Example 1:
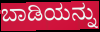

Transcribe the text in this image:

ಬಾಡಿಯನ್ನು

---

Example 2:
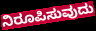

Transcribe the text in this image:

ನಿರೂಪಿಸುವುದು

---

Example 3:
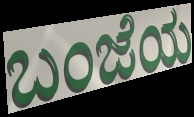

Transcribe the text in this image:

ಬಂಜೆಯ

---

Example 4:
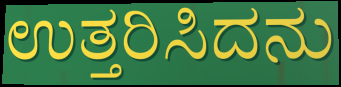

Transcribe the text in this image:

ಉತ್ತರಿಸಿದನು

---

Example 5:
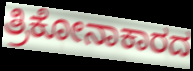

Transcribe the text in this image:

ತ್ರಿಕೋನಾಕಾರದ